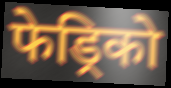
फेड्रिको